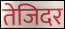
तेजिदर